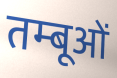
तम्बूओं